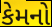
કેમનો